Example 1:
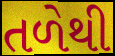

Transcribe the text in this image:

તળેથી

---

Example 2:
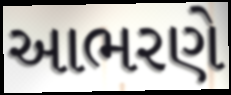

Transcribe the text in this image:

આભરણે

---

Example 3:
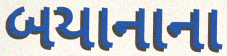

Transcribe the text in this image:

બયાનાના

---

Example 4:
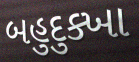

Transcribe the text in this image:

બહુદુક્ખા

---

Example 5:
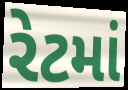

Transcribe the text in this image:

રેટમાં